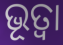
ଭୂତ୍ଵା